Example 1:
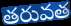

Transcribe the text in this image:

తరువత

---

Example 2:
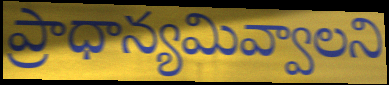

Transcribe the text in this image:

ప్రాధాన్యమివ్వాలని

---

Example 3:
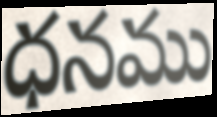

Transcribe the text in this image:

ధనము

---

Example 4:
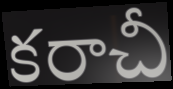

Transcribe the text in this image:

కరాచీ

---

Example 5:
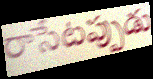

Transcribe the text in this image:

రాసేటప్పుడు